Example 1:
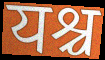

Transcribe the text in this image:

यश्च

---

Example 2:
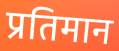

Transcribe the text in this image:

प्रतिमान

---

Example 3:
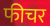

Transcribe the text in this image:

फीचर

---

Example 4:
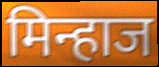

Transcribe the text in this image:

मिन्हाज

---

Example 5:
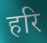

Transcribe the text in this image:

हरि